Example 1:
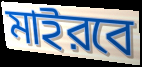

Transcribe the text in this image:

মাইরবে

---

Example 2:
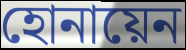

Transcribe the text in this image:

হোনায়েন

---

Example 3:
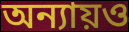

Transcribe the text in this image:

অন্যায়ও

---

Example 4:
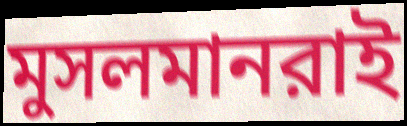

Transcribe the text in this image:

মুসলমানরাই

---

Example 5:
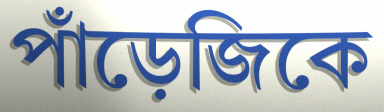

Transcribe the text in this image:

পাঁড়েজিকে